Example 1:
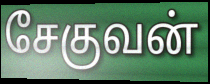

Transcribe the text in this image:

சேகுவன்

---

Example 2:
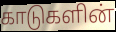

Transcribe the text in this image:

காடுகளின்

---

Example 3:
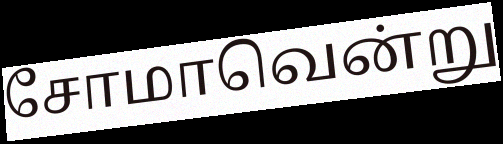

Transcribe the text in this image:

சோமாவென்று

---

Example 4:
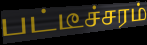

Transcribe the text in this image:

பட்டீச்சரம்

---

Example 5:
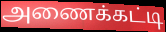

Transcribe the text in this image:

அணைக்கட்டி